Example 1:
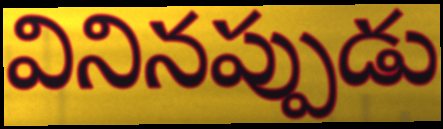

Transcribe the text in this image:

వినినప్పుడు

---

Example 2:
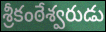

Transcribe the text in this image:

శ్రీకంఠేశ్వరుడు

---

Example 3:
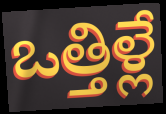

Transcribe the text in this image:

ఒత్తిళ్లే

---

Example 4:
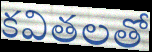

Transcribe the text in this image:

కవితలతో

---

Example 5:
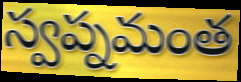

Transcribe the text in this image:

స్వప్నమంత